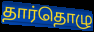
தார்தொழு